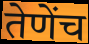
तेणेंच